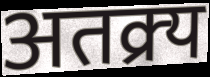
अतक्र्य